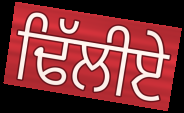
ਢਿੱਲੀਏ